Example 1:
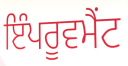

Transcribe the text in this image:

ਇੰਪਰੂਵਮੈਂਟ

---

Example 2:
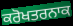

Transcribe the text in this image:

ਕਰੋਖਤਰਨਾਕ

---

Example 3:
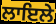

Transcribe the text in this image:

ਲਾਇਲੇ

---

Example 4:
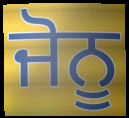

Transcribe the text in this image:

ਜੋਨੂ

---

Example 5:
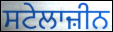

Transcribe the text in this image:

ਸਟੇਲਾਜ਼ੀਨ